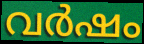
വർഷം